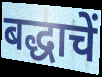
बद्धाचें